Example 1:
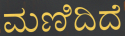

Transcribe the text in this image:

ಮಣಿದಿದೆ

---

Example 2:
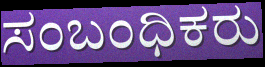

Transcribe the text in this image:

ಸಂಬಂಧಿಕರು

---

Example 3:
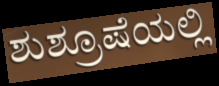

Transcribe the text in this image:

ಶುಶ್ರೂಷೆಯಲ್ಲಿ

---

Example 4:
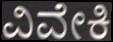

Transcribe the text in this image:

ವಿವೇಕಿ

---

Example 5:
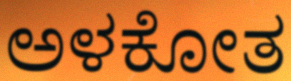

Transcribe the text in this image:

ಅಳಕೋತ